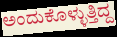
ಅಂದುಕೊಳ್ಳುತ್ತಿದ್ದ